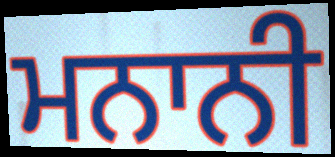
ਮਨਾਨੀ